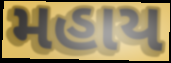
મહાય